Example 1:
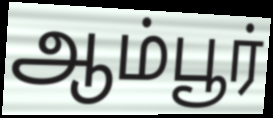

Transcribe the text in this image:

ஆம்பூர்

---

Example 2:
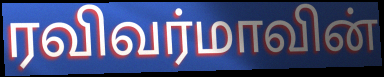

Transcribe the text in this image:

ரவிவர்மாவின்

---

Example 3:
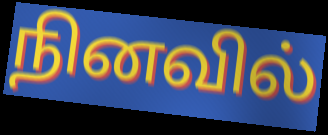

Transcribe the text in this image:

நினவில்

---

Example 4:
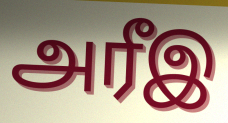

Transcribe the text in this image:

அரீஇ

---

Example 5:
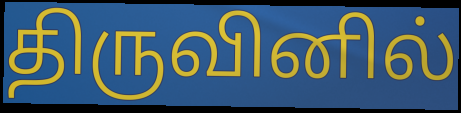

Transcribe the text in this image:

திருவினில்